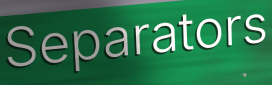
Separators